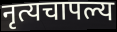
नृत्यचापल्य